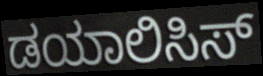
ಡಯಾಲಿಸಿಸ್